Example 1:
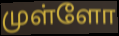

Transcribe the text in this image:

முள்ளோ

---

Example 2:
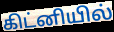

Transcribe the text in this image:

கிட்னியில்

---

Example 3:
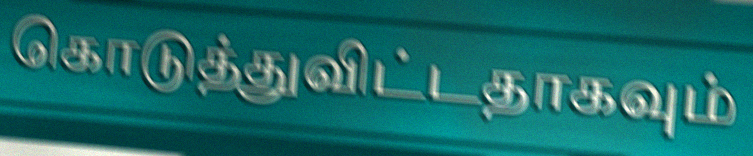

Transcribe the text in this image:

கொடுத்துவிட்டதாகவும்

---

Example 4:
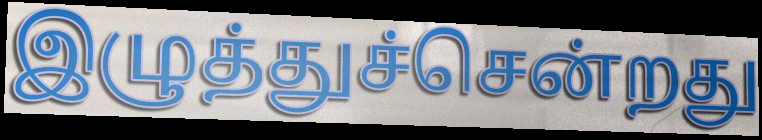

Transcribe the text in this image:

இழுத்துச்சென்றது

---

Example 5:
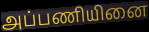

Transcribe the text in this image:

அப்பணியினை